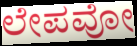
ಲೇಪವೋ